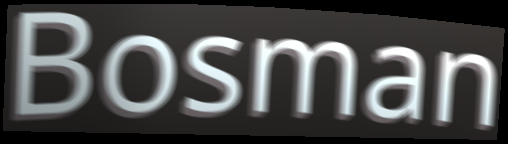
Bosman